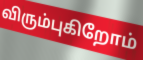
விரும்புகிறோம்